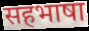
सहभाषा